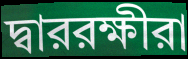
দ্বাররক্ষীরা